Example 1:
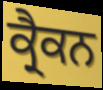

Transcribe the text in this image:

ਕ੍ਰੈਕਨ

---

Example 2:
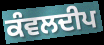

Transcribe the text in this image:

ਕੰਵਲਦੀਪ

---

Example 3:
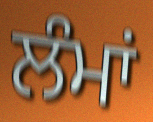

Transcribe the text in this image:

ਲੰਮਾਂ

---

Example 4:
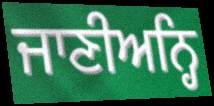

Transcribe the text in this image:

ਜਾਣੀਅਨ੍ਹਿ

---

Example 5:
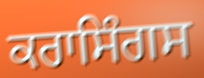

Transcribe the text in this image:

ਕਰਾਸਿੰਗਸ